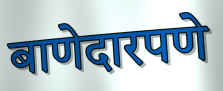
बाणेदारपणे